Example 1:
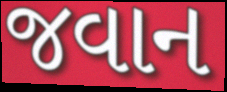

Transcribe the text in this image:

જવાન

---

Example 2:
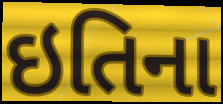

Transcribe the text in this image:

ઇતિના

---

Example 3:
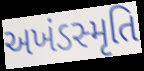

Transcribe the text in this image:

અખંડસ્મૃતિ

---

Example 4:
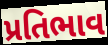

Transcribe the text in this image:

પ્રતિભાવ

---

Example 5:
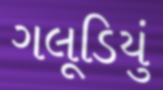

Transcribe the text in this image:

ગલૂડિયું